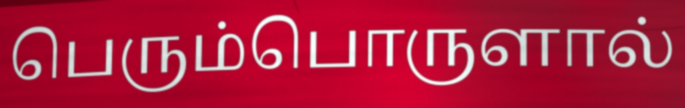
பெரும்பொருளால்